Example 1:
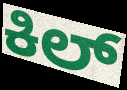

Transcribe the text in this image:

ಕಿಲ್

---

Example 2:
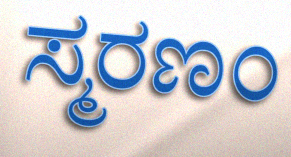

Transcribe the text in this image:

ಸ್ಮರಣಂ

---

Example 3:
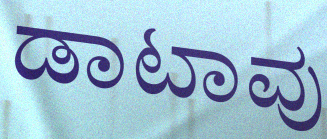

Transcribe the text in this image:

ಡಾಟಾವು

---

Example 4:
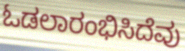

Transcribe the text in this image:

ಓಡಲಾರಂಭಿಸಿದೆವು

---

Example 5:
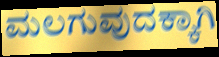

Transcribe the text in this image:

ಮಲಗುವುದಕ್ಕಾಗಿ